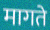
मागते